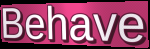
Behave